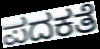
ಪದಕತೆ